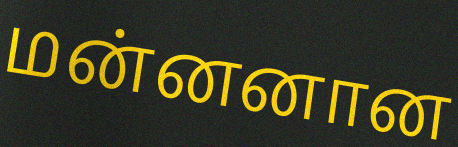
மன்னனான